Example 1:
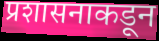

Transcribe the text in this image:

प्रशासनाकडून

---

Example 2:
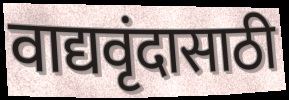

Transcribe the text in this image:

वाद्यवृंदासाठी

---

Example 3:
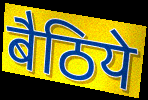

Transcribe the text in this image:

बैठिये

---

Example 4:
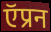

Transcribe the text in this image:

ऍप्रन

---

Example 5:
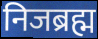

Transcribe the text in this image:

निजब्रह्म